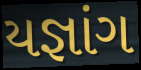
યજ્ઞાંગ